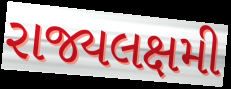
રાજ્યલક્ષમી